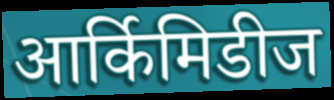
आर्किमिडीज